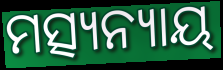
ମତ୍ସ୍ୟନ୍ୟାୟ